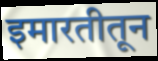
इमारतीतून